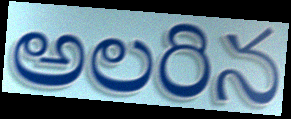
అలరిన